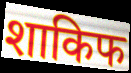
शाकिफ